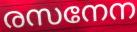
രസനേന